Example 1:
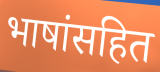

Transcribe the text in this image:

भाषांसहित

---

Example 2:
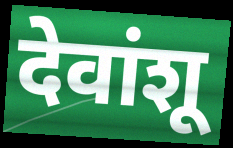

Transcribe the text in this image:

देवांशू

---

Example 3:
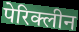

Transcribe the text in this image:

पेरिक्लीन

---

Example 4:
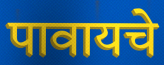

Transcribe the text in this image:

पावायचे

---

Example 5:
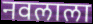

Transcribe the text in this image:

नवलाला